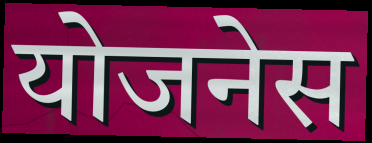
योजनेस